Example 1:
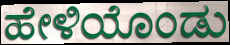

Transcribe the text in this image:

ಹೇಳಿಯೊಂಡು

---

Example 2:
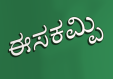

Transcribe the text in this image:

ಈಸಕಮ್ಪಿ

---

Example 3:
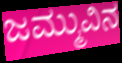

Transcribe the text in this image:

ಜಮ್ಮುವಿನ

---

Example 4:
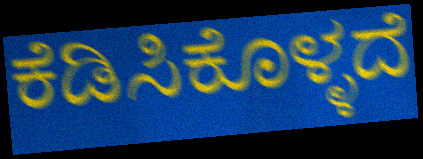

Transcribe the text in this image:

ಕೆಡಿಸಿಕೊಳ್ಳದೆ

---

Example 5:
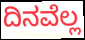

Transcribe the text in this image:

ದಿನವೆಲ್ಲ